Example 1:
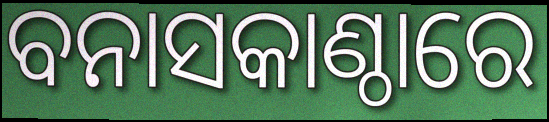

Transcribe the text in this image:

ବନାସକାଣ୍ଠାରେ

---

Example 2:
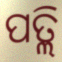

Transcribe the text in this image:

ପତ୍ଲି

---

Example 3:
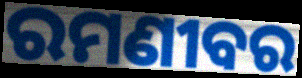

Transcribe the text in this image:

ରମଣୀବର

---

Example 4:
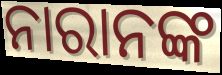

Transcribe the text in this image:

ନାରାନଙ୍କ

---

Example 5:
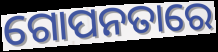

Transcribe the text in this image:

ଗୋପନତାରେ